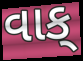
વાક્